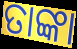
ତାଙ୍କା